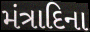
મંત્રાદિના